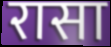
रासा